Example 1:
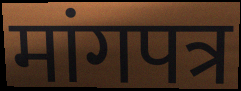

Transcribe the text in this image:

मांगपत्र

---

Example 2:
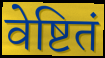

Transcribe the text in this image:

वेष्टितं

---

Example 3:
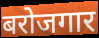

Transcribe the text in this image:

बरोजगार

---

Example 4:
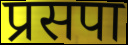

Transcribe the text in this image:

प्रसपा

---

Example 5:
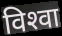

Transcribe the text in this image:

विश्‍वा